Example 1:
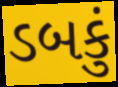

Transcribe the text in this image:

ડબકું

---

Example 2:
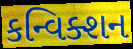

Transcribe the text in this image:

કન્વિક્શન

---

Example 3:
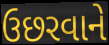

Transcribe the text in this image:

ઉછરવાને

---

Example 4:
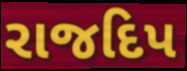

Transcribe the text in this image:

રાજદિપ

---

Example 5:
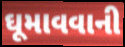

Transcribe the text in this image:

ઘૂમાવવાની